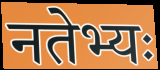
नतेभ्यः